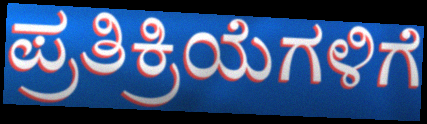
ಪ್ರತಿಕ್ರಿಯೆಗಳಿಗೆ